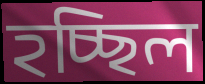
হচ্ছিল